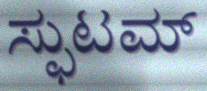
ಸ್ಫುಟಮ್